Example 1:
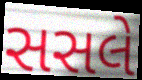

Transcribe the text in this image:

સસલે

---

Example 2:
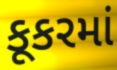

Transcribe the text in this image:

કૂકરમાં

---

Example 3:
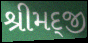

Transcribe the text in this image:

શ્રીમદ્જી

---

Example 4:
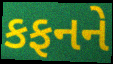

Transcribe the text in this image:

કફનને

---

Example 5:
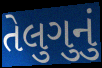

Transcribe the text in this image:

તેલુગુનું